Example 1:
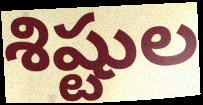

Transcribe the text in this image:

శిష్టుల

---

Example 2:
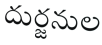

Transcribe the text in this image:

దుర్జనుల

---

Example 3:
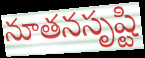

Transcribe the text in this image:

నూతనసృష్టి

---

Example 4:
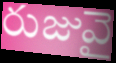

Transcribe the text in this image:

రుజువై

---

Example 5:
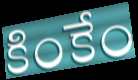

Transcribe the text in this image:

కింకేం